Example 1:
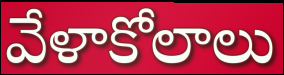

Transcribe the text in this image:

వేళాకోలాలు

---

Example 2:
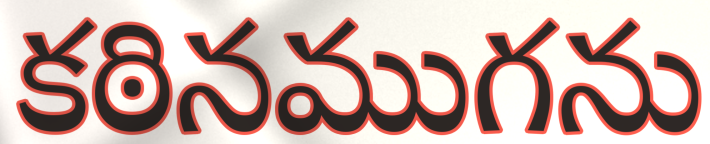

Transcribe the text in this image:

కఠినముగను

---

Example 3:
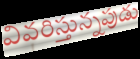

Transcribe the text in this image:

వివరిస్తున్నపుడు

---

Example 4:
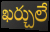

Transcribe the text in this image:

ఖర్చులే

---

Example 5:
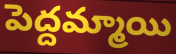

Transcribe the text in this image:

పెద్దమ్మాయి